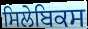
ਸਿਲੇਬਿਕਸ